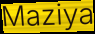
Maziya